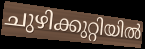
ചുഴിക്കുറ്റിയിൽ